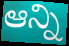
ఆన్ని